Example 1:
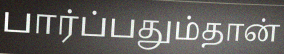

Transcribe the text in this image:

பார்ப்பதும்தான்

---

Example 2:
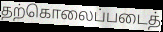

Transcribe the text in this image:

தற்கொலைப்படைத்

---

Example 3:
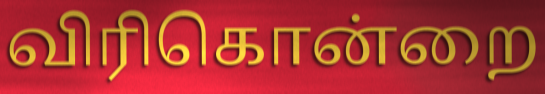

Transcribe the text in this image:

விரிகொன்றை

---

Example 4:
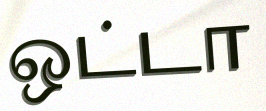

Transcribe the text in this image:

ஒட்டா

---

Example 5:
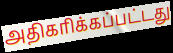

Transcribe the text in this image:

அதிகரிக்கப்பட்டது